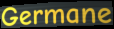
Germane